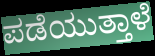
ಪಡೆಯುತ್ತಾಳೆ